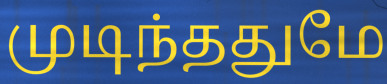
முடிந்ததுமே